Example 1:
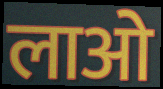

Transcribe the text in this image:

लाओ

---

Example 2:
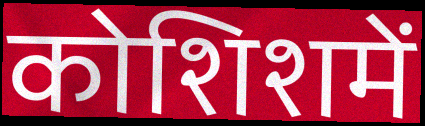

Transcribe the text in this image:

कोशिशमें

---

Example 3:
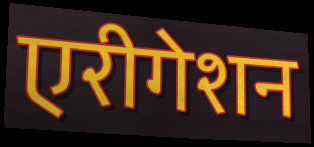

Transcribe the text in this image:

एरीगेशन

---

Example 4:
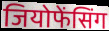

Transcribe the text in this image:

जियोफेंसिंग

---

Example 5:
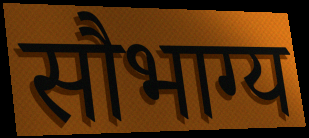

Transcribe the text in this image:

सौभाग्य